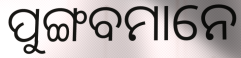
ପୁଙ୍ଗବମାନେ